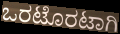
ಒರಟೊರಟಾಗಿ